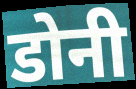
डोनी